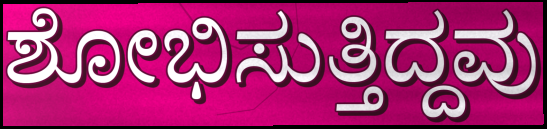
ಶೋಭಿಸುತ್ತಿದ್ದವು